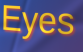
Eyes